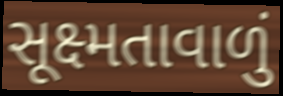
સૂક્ષ્મતાવાળું